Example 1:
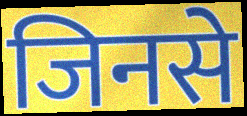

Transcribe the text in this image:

जिनसे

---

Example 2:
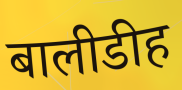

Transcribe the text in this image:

बालीडीह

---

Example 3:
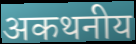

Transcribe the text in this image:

अकथनीय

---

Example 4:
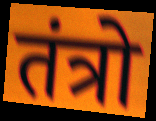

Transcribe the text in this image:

तंत्रो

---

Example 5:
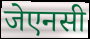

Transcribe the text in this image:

जेएनसी